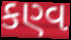
કણ્વ